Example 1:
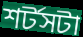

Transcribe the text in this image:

শর্টসটা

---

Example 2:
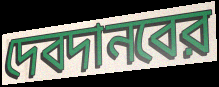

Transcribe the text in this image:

দেবদানবের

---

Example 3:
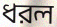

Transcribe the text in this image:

ধরল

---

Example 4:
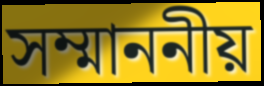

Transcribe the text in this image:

সম্মাননীয়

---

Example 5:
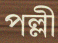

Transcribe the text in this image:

পল্লী